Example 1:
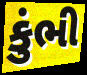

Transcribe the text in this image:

કુંભી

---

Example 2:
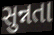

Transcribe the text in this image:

સુન્નતા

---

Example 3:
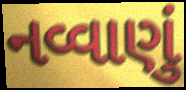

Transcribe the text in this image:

નવ્વાણું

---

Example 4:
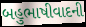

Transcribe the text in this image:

બહુભાષીવાદની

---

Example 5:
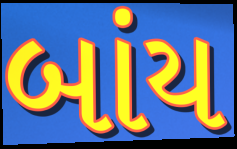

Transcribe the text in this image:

બાંય